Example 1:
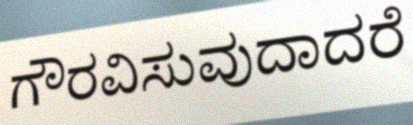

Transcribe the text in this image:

ಗೌರವಿಸುವುದಾದರೆ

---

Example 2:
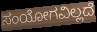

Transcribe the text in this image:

ಸಂಯೋಗವಿಲ್ಲದೆ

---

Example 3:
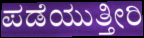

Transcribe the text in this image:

ಪಡೆಯುತ್ತೀರಿ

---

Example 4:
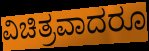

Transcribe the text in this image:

ವಿಚಿತ್ರವಾದರೂ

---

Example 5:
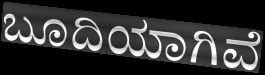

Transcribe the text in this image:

ಬೂದಿಯಾಗಿವೆ